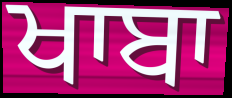
ਖਾਬਾ